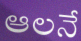
ఆలనే